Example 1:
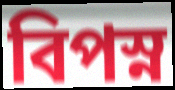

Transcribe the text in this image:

বিপস্ন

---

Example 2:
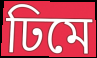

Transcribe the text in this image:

ঢিমে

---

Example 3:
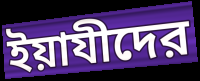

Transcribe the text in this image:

ইয়াযীদের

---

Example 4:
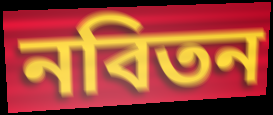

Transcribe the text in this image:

নবিতন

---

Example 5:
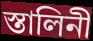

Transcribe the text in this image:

স্তালিনী